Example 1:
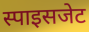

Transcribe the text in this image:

स्पाइसजेट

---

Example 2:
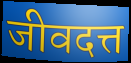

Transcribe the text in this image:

जीवदत्त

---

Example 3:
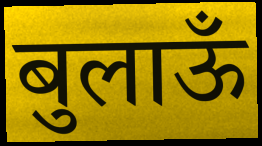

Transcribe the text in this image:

बुलाऊँ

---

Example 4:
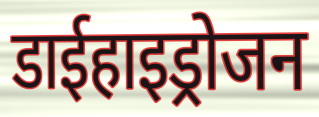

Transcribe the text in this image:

डाईहाइड्रोजन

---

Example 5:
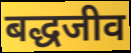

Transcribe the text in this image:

बद्धजीव